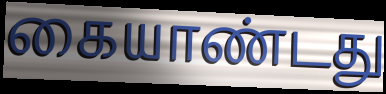
கையாண்டது